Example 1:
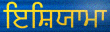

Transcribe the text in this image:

ਇਸ਼ਿਯਾਮਾ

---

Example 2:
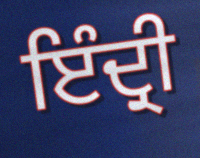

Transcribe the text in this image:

ਇੰਦ੍ਰੀ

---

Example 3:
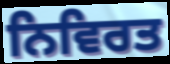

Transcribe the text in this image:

ਨਿਵਿਰਤ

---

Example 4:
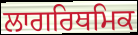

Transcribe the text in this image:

ਲਾਗਰਿਥਮਿਕ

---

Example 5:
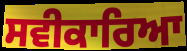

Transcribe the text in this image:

ਸਵੀਕਾਰਿਆ